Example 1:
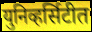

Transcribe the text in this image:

युनिव्हर्सिटीत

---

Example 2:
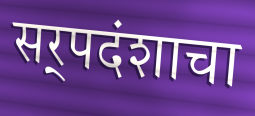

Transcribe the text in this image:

सर्पदंशाचा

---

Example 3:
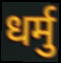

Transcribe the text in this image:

धर्मु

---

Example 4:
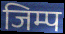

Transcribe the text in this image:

जिम्प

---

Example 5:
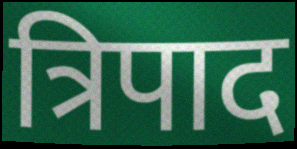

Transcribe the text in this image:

त्रिपाद